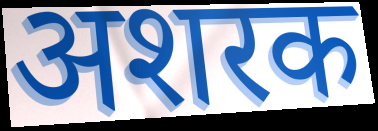
अशरक